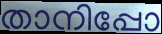
താനിപ്പോ